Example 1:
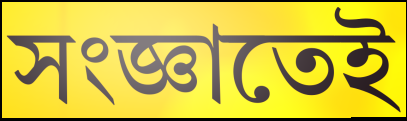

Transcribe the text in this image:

সংজ্ঞাতেই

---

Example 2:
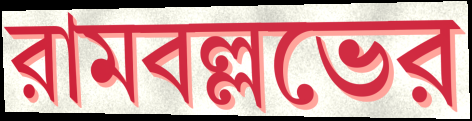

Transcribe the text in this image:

রামবল্লভের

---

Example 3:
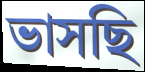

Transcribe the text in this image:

ভাসছি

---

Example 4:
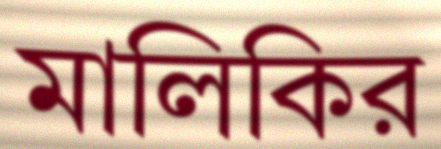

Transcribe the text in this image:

মালিকির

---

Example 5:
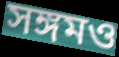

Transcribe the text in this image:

সঙ্গমও